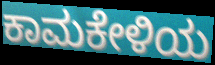
ಕಾಮಕೇಳಿಯ